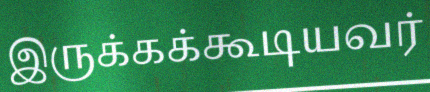
இருக்கக்கூடியவர்